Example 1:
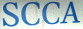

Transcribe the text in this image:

SCCA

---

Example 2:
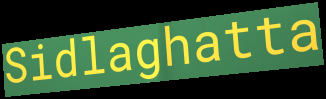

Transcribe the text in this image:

Sidlaghatta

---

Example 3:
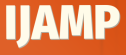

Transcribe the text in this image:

IJAMP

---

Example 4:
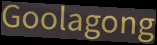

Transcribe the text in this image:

Goolagong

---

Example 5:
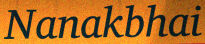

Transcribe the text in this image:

Nanakbhai